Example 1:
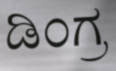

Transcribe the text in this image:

ಡಿಂಗ್ರ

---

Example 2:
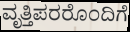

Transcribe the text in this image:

ವೃತ್ತಿಪರರೊಂದಿಗೆ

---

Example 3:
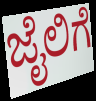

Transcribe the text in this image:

ಜೈಲಿಗೆ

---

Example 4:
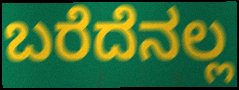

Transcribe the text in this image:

ಬರೆದೆನಲ್ಲ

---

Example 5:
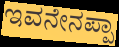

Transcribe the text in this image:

ಇವನೇನಪ್ಪಾ